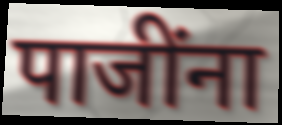
पाजींना